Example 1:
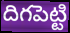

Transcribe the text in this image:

దిగపెట్టి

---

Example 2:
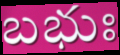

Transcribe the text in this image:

బభుః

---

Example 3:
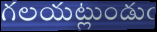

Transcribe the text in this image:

గలయట్లుండుఁ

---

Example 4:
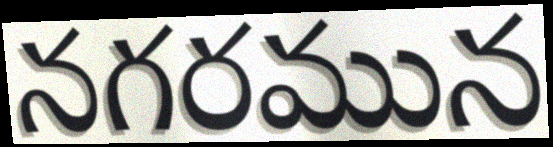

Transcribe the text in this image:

నగరమున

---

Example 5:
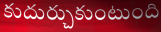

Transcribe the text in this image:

కుదుర్చుకుంటుంది